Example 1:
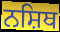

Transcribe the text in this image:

ਨਸ਼ਿਥ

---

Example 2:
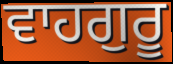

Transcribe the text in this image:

ਵਾਹਗੁਰੂ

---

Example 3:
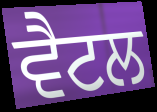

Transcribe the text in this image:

ਵੈਟਲ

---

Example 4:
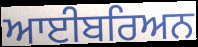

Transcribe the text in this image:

ਆਈਬਰਿਅਨ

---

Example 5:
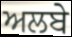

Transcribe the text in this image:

ਅਲਬੇ